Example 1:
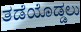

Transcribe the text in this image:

ತಡೆಯೊಡ್ಡಲು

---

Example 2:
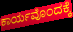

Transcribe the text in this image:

ಕಾರ್ಯವೊಂದಕ್ಕೆ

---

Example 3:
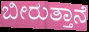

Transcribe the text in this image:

ಬೀರುತ್ತಾನೆ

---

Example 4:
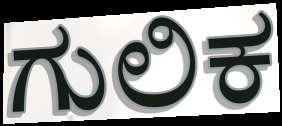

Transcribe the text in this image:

ಗುಲಿಕ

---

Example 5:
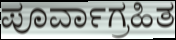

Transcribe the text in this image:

ಪೂರ್ವಾಗ್ರಹಿತ